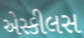
એસ્કીલસ